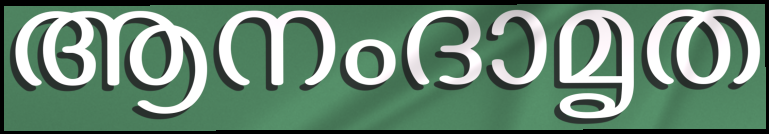
ആനംദാമൃത